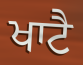
ਖਾਟੈ